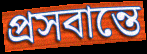
প্রসবান্তে